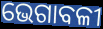
ଭେଗାବଳୀ